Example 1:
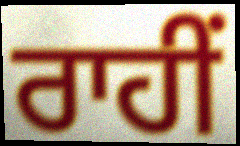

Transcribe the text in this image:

ਰਾਹੀਂ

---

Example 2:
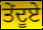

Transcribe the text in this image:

ਤੇਂਦੂਏ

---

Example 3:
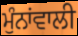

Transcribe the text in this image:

ਮੁੰਨਾਂਵਾਲੀ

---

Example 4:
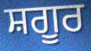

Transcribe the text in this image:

ਸ਼ਗੂਰ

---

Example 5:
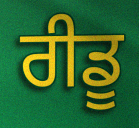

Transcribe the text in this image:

ਰੀਡੂ